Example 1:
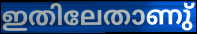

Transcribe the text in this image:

ഇതിലേതാണു്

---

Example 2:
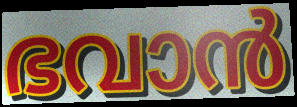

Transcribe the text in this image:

ഭവാൻ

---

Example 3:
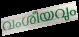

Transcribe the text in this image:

വംശീയവും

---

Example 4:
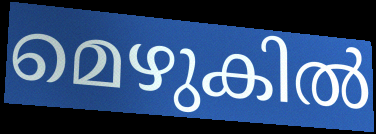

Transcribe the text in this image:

മെഴുകിൽ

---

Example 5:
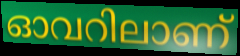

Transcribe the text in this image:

ഓവറിലാണ്